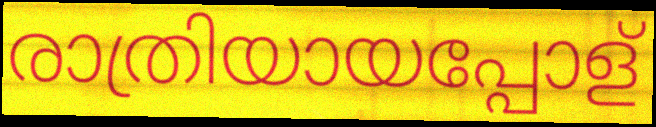
രാത്രിയായപ്പോള്